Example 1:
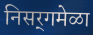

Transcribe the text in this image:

निसर्गमेळा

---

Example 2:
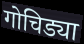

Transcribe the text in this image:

गोचिड्या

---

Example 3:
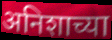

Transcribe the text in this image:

अनिशाच्या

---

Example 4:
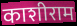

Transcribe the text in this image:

काशीराम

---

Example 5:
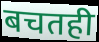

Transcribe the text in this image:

बचतही